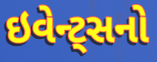
ઇવેન્ટ્સનો